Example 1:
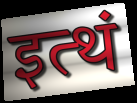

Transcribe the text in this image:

इत्थं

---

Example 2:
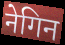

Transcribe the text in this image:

नेगिन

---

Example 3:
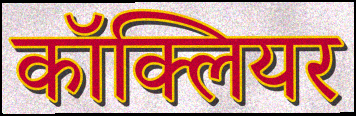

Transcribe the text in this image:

कॉक्लियर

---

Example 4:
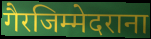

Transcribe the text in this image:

गैरजिम्मेदराना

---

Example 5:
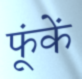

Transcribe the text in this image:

फूंकें